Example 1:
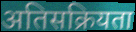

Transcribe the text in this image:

अतिसक्रियता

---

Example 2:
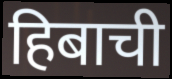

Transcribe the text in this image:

हिबाची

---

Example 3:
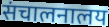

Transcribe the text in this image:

संचालनालय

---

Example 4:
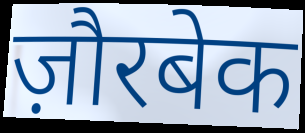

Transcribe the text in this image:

ज़ौरबेक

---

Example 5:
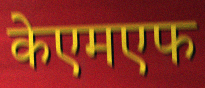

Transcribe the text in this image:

केएमएफ